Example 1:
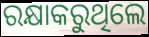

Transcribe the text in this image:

ରକ୍ଷାକରୁଥିଲେ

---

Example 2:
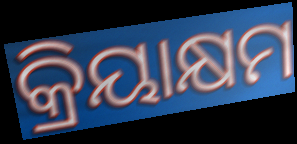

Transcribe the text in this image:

କ୍ରିୟାକ୍ଷମ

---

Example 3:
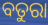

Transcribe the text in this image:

ବତୁରା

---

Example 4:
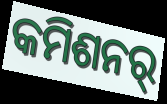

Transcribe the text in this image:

କମିଶନର୍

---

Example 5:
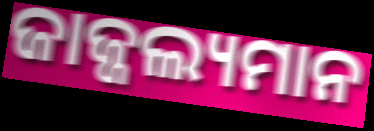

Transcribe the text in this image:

ଜାଜ୍ଜଲ୍ୟମାନ